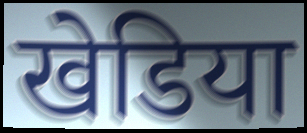
खेडिया